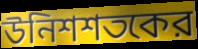
উনিশশতকের